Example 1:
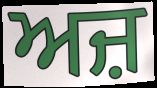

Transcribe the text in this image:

ਅਜ਼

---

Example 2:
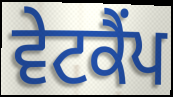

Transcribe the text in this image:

ਵੇਟਕੈਂਪ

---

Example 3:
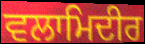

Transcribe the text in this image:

ਵਲਾਮਿਦੀਰ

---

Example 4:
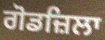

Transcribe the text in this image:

ਗੋਡਜ਼ਿਲਾ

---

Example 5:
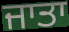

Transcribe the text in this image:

ਜਾਤਾ